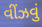
વીંઝવું